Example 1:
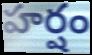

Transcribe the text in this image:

హర్షం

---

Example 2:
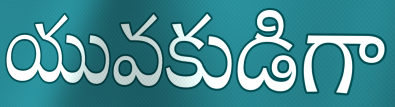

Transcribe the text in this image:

యువకుడిగా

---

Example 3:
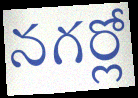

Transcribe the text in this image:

నగర్లో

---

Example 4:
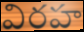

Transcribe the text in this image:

విరహ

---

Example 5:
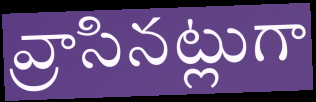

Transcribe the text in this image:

వ్రాసినట్లుగా